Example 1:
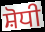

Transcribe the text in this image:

ਸ਼ੋਧੀ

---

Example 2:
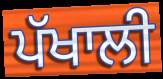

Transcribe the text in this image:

ਪੱਖਾਲੀ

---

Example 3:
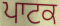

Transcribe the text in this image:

ਪਾਟਕ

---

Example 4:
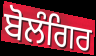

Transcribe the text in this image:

ਬੋਲੰਗਿਰ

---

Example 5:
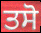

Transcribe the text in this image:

ਤਸੋ